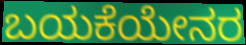
ಬಯಕೆಯೇನರ